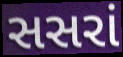
સસરાં